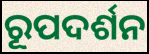
ରୂପଦର୍ଶନ